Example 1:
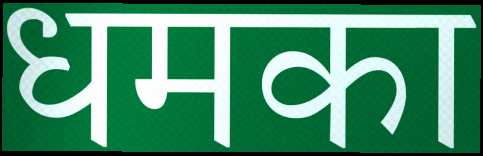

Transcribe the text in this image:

धमका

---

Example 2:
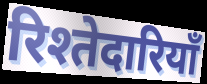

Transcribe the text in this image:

रिश्तेदारियाँ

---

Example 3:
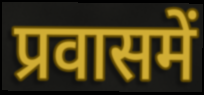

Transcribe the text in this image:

प्रवासमें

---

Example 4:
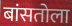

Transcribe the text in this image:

बांसतोला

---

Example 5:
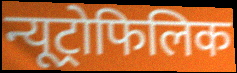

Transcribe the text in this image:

न्यूट्रोफिलिक